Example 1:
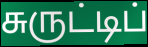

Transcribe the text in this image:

சுருட்டிப்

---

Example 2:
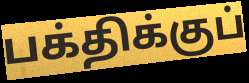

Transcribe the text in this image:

பக்திக்குப்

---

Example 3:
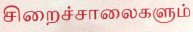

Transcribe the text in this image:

சிறைச்சாலைகளும்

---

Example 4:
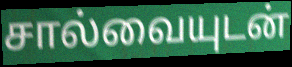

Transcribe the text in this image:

சால்வையுடன்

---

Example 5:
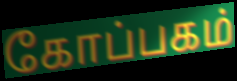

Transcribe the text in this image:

கோப்பகம்